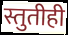
स्तुतीही